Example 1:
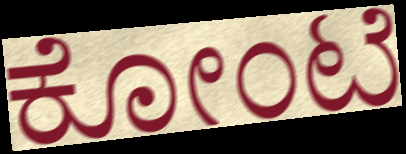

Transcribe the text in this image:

ಕೋಂಟೆ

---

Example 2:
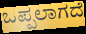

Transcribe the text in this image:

ಒಪ್ಪಲಾಗದೆ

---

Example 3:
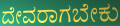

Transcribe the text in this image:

ದೇವರಾಗಬೇಕು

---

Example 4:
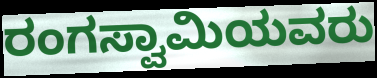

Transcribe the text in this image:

ರಂಗಸ್ವಾಮಿಯವರು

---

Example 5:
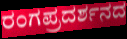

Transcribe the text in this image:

ರಂಗಪ್ರದರ್ಶನದ